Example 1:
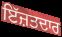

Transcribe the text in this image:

ਇੱਜ਼ਤਦਾਰ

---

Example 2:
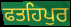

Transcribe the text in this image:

ਫਤਹਿਪੁਰ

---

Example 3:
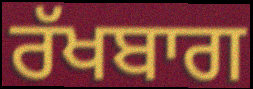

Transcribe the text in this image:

ਰੱਖਬਾਗ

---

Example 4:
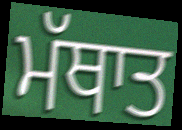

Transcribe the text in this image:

ਮੱਥਾਤ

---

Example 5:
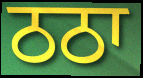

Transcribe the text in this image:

ਠਠਾ